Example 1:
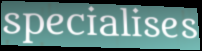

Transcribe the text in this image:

specialises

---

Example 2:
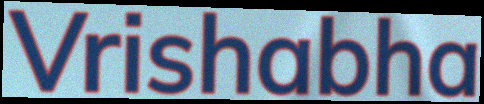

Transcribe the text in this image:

Vrishabha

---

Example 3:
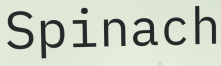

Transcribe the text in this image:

Spinach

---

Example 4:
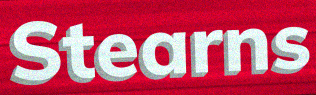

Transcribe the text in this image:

Stearns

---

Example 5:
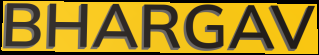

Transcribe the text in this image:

BHARGAV